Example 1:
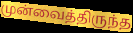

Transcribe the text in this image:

முன்வைத்திருந்த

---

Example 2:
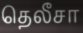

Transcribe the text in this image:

தெலீசா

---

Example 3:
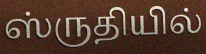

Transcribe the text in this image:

ஸ்ருதியில்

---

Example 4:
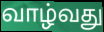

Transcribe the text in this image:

வாழ்வது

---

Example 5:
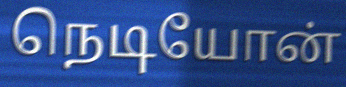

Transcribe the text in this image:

நெடியோன்